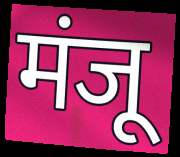
मंजू